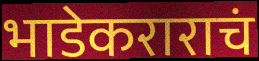
भाडेकराराचं